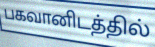
பகவானிடத்தில்